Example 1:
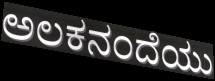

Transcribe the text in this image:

ಅಲಕನಂದೆಯು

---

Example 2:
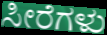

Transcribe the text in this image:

ಸೀರೆಗಳು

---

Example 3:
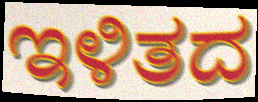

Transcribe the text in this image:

ಇಳಿತದ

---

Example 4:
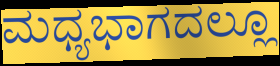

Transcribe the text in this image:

ಮಧ್ಯಭಾಗದಲ್ಲೂ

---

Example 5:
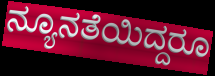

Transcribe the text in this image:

ನ್ಯೂನತೆಯಿದ್ದರೂ